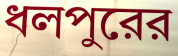
ধলপুরের